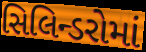
સિલિન્ડરોમાં